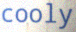
cooly